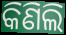
କିଣିଲି